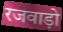
रजवाड़ो